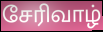
சேரிவாழ்